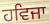
ਹਵਿਜਾ